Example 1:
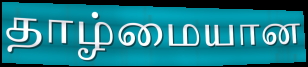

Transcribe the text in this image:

தாழ்மையான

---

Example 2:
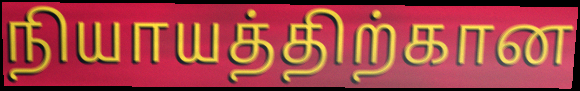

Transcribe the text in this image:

நியாயத்திற்கான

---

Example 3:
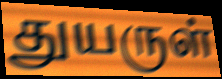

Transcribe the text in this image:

துயருள்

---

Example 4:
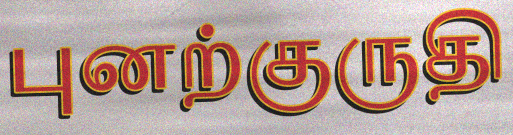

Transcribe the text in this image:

புனற்குருதி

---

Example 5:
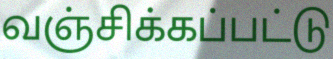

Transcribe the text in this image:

வஞ்சிக்கப்பட்டு